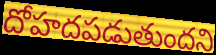
దోహదపడుతుందని